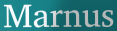
Marnus